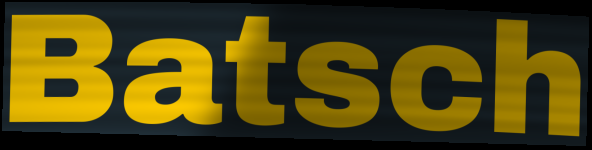
Batsch